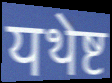
यथेष्ट